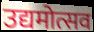
उद्यमोत्सव